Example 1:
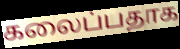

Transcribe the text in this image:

கலைப்பதாக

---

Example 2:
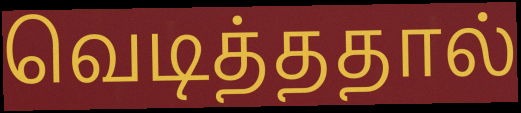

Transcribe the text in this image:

வெடித்ததால்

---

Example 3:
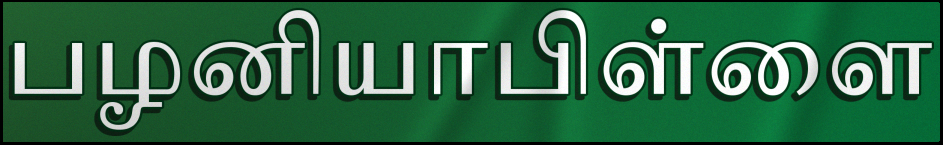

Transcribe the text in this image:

பழனியாபிள்ளை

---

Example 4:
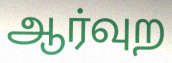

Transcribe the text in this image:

ஆர்வுற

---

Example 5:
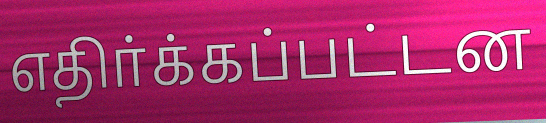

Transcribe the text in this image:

எதிர்க்கப்பட்டன